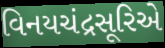
વિનયચંદ્રસૂરિએ